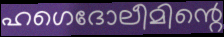
ഹഗെദോലീമിന്റെ